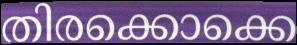
തിരക്കൊക്കെ